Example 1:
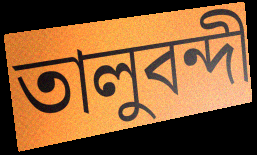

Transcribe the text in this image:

তালুবন্দী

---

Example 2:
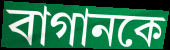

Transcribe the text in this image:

বাগানকে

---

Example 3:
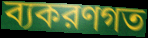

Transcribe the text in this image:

ব্যকরণগত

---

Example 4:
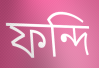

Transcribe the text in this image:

ফন্দি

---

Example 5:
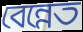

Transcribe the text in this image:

বেন্নেত